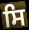
ਸਿ